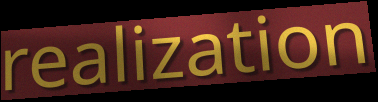
realization